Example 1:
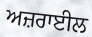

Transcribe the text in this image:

ਅਜ਼ਰਾਈਲ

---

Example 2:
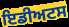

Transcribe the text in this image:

ਇਡੀਅਟਸ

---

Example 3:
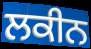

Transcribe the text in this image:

ਲਕੀਨ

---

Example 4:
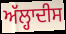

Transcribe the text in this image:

ਅੱਲ੍ਹਾਦੀਸ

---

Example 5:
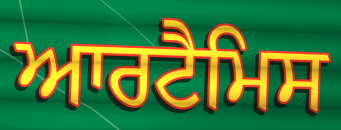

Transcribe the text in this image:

ਆਰਟੈਮਿਸ